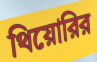
থিয়োরির